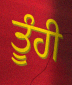
ਤੂੰਹੀ